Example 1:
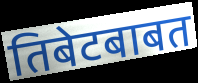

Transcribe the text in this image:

तिबेटबाबत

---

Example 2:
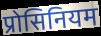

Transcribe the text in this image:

प्रोसिनियम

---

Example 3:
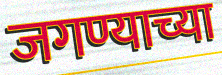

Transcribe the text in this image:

जगण्याच्या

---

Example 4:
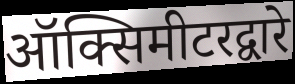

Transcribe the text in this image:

ऑक्सिमीटरद्वारे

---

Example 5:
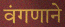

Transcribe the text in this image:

वंगणाने